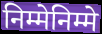
निम्मेनिम्मे